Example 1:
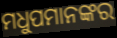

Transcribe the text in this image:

ମଧୁପମାନଙ୍କର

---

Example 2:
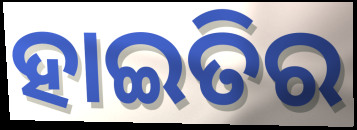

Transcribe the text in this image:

ହାଇତିର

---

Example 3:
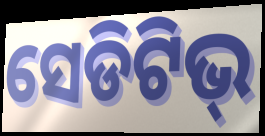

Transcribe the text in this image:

ସେଡିଟିଭ୍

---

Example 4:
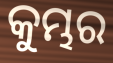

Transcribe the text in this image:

କୁମ୍ଭର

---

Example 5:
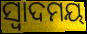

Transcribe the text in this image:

ସ୍ଵାଦମୟ